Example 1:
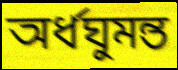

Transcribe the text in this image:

অর্ধঘুমন্ত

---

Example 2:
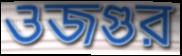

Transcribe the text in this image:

ওজগুর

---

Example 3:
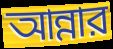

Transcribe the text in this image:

আন্নার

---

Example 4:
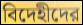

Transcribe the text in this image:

বিদেহীদের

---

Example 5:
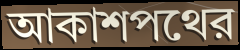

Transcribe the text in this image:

আকাশপথের